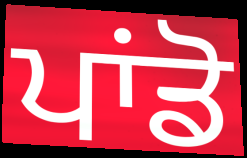
ਪਾਂਡੋ